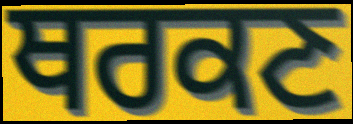
ਥਰਕਣ